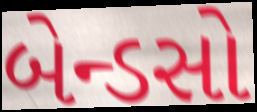
બેન્ડસો